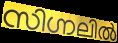
സിഗ്നലിൽ